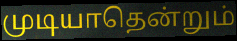
முடியாதென்றும்